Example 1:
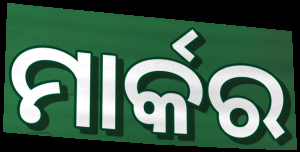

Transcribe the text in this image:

ମାର୍କର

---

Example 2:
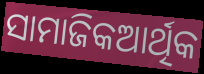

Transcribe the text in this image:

ସାମାଜିକଆର୍ଥିକ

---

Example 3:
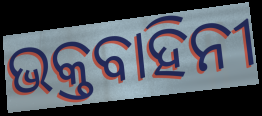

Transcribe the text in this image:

ଭକ୍ତବାହିନୀ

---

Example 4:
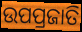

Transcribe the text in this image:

ଉପପ୍ରଜାତି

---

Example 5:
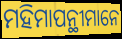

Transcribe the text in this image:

ମହିମାପନ୍ଥୀମାନେ